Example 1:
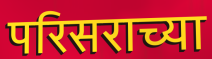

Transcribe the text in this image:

परिसराच्या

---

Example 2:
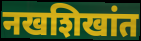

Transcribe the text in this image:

नखशिखांत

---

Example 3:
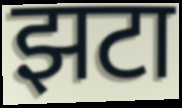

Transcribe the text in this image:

झटा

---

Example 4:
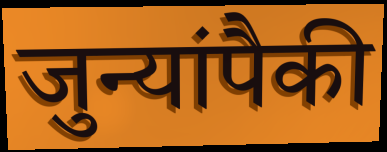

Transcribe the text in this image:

जुन्यांपैकी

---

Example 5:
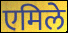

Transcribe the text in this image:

एमिले